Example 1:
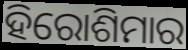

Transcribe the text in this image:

ହିରୋଶିମାର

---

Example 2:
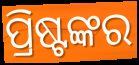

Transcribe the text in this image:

ପ୍ରିଷ୍ଟଙ୍କର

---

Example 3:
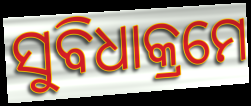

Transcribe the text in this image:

ସୁବିଧାକ୍ରମେ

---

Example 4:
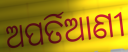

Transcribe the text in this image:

ଅପର୍ତିଆଣୀ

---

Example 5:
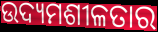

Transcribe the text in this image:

ଉଦ୍ୟମଶୀଳତାର